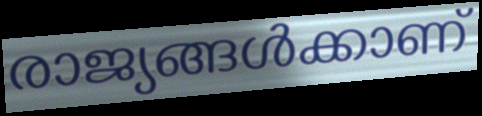
രാജ്യങ്ങൾക്കാണ്